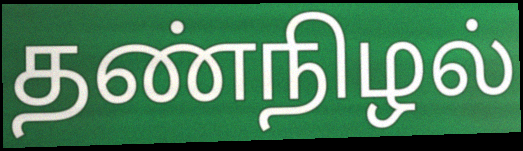
தண்நிழல்